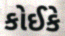
કોઈકે